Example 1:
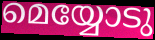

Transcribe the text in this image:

മെയ്യോടു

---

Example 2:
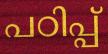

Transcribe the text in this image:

പഠിപ്പ്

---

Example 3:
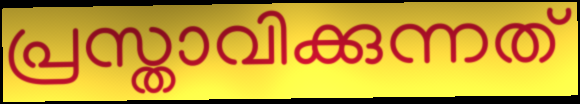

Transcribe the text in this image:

പ്രസ്താവിക്കുന്നത്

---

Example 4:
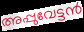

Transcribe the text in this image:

അപ്പുവേട്ടൻ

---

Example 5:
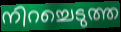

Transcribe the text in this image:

നിറച്ചെടുത്ത